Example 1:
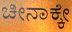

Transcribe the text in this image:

ಚೀನಾಕ್ಕೇ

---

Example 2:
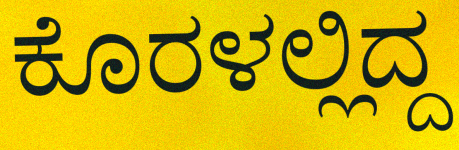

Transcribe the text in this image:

ಕೊರಳಲ್ಲಿದ್ದ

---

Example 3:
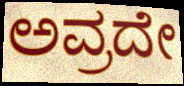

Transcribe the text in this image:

ಅವ್ರದೇ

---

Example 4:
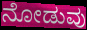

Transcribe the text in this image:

ನೋಡುವು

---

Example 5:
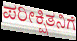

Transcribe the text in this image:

ಪರೀಕ್ಷಿತನಿಗೆ